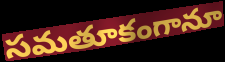
సమతూకంగానూ